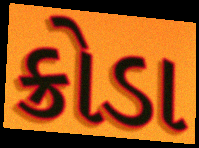
ક્રોડા